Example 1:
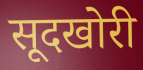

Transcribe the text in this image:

सूदखोरी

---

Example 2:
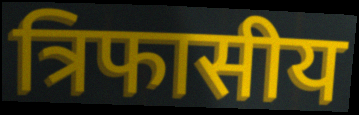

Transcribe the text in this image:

त्रिफासीय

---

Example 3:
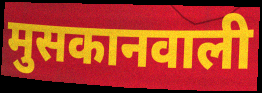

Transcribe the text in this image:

मुसकानवाली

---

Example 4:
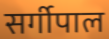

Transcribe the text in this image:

सर्गीपाल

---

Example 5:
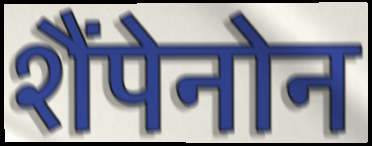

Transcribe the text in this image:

शैंपेनोन